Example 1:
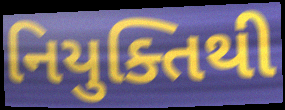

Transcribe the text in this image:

નિયુક્તિથી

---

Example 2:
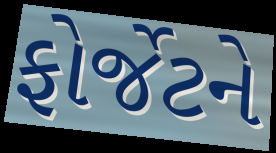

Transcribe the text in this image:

ફોર્જેટને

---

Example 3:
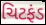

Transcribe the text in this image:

ચિટફંડ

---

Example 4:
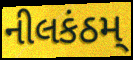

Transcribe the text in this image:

નીલકંઠમ્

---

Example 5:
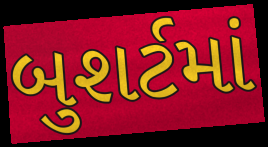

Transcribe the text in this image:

બુશર્ટમાં